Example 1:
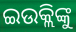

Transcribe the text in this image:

ଇଉକ୍ଲିଙ୍କୁ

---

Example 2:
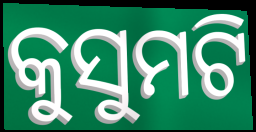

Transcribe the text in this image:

କୁସୁମଟି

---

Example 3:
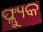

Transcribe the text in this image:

ଫ୍ଲ୍ୟୁକ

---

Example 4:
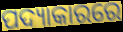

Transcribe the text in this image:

ପଦ୍ଯାକାରରେ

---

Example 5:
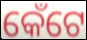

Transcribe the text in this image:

କେଁଟେ